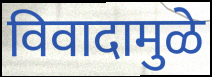
विवादामुळे